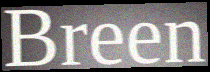
Breen